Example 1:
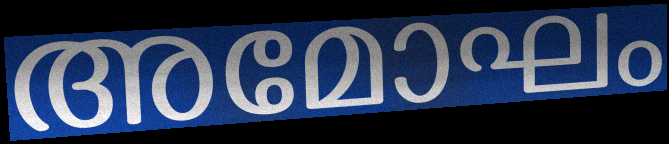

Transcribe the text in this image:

അമോഘം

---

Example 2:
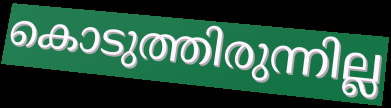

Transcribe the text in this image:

കൊടുത്തിരുന്നില്ല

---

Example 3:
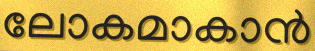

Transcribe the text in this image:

ലോകമാകാൻ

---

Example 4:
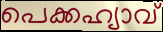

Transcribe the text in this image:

പെക്കഹ്യാവ്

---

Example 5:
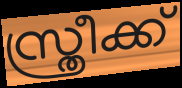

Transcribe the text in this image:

സ്ത്രീക്ക്